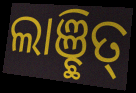
ଲାଞ୍ଛିତ୍